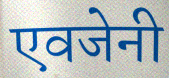
एवजेनी